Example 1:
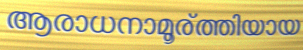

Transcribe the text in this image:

ആരാധനാമൂര്ത്തിയായ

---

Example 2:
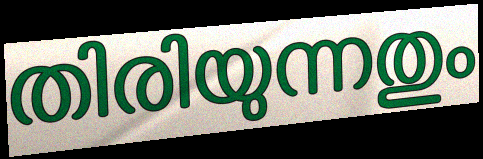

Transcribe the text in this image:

തിരിയുന്നതും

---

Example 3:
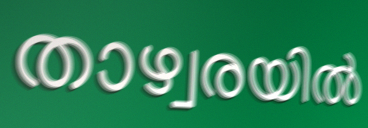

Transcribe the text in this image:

താഴ്വരയിൽ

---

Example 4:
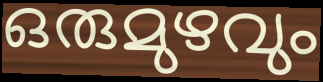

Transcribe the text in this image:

ഒരുമുഴവും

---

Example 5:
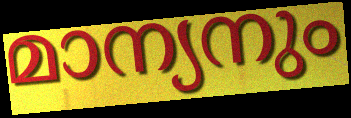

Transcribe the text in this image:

മാന്യനും